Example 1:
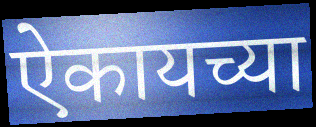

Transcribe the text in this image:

ऐकायच्या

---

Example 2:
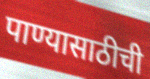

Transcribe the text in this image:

पाण्यासाठीची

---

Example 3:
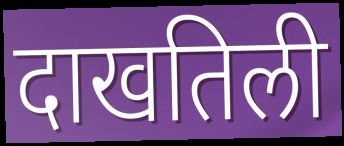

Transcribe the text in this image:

दाखतिली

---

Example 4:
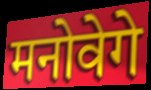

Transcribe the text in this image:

मनोवेगे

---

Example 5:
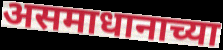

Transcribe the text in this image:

असमाधानाच्या